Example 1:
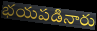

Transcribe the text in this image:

భయపడినారు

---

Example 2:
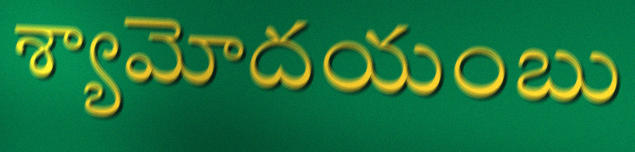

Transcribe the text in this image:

శ్యామోదయంబు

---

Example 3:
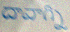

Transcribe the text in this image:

దావాగ్ని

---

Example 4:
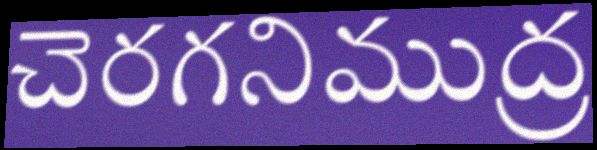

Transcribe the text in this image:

చెరగనిముద్ర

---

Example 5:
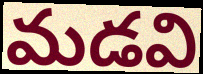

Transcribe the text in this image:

మడవి